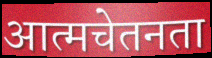
आत्मचेतनता